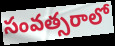
సంవత్సరాలో